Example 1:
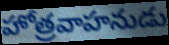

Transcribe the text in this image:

హోత్రవాహనుడు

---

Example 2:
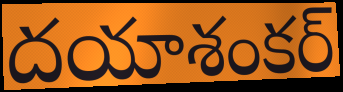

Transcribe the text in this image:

దయాశంకర్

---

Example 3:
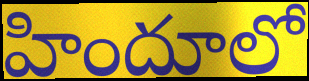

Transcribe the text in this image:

హిందూలో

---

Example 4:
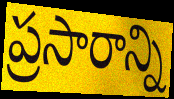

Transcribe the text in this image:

ప్రసారాన్ని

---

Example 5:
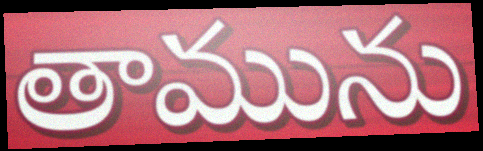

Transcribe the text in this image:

తామును